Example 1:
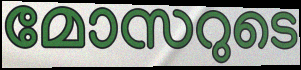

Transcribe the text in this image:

മോസറുടെ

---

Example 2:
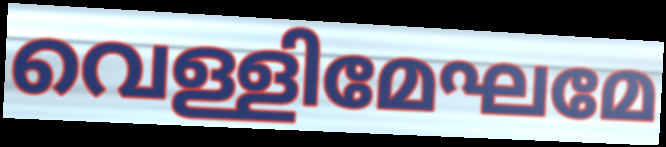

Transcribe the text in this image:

വെള്ളിമേഘമേ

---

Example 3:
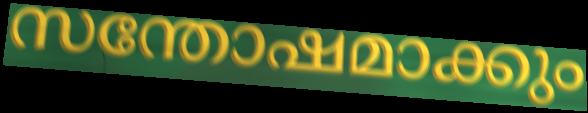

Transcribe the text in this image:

സന്തോഷമാക്കും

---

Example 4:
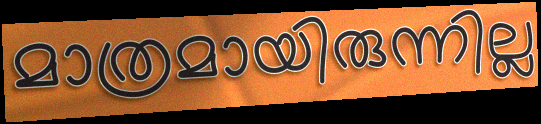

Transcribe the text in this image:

മാത്രമായിരുന്നില്ല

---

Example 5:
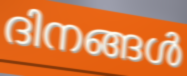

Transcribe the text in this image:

ദിനങ്ങൾ